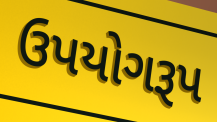
ઉપયોગરૂપ